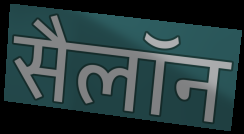
सैलॉन